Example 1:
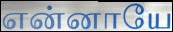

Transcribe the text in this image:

என்னாயே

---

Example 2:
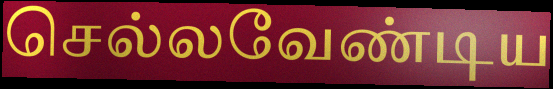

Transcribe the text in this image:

செல்லவேண்டிய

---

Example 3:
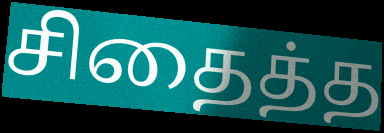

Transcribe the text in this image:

சிதைத்த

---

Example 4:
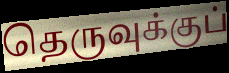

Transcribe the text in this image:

தெருவுக்குப்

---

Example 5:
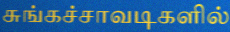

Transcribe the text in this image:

சுங்கச்சாவடிகளில்